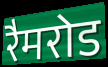
रैमरोड